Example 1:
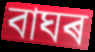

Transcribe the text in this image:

বাঘৰ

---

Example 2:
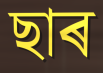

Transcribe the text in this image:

ছাৰ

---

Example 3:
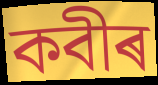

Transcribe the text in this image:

কবীৰ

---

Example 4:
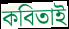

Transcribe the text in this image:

কবিতাই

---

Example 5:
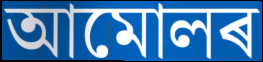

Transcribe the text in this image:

আমোলৰ